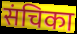
संचिका